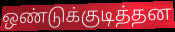
ஒண்டுக்குடித்தன